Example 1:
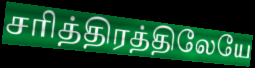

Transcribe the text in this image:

சரித்திரத்திலேயே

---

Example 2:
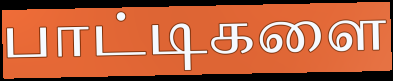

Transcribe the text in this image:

பாட்டிகளை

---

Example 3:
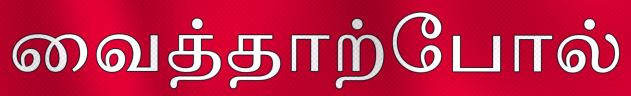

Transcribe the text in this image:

வைத்தாற்போல்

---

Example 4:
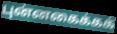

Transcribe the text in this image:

புன்னகைக்கக்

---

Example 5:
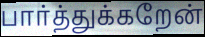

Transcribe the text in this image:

பார்த்துக்கறேன்